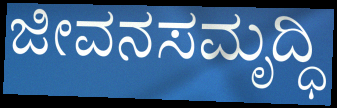
ಜೀವನಸಮೃದ್ಧಿ